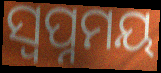
ସ୍ଵପ୍ନମୟ